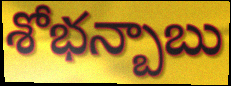
శోభన్బాబు